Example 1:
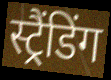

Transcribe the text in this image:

स्ट्रैंडिंग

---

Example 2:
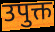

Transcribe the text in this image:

उपुक्त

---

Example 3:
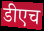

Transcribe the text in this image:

डीएच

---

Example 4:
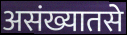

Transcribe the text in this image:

असंख्यातसे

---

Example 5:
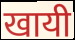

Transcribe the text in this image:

खायी